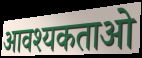
आवश्यकताओ